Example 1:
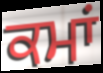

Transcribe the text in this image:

ਕਮਾਂ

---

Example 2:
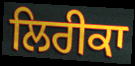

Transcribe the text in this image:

ਲਿਰੀਕਾ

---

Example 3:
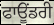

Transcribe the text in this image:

ਫਾਊਂਡਰੀ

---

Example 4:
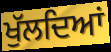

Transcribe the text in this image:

ਖੁੱਲਦਿਆਂ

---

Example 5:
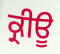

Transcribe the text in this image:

ਕ੍ਰੀਊ